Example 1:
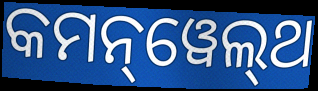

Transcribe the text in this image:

କମନ୍‌ୱେଲ୍‌ଥ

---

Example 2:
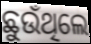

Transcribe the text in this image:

ଛୁଉଁଥିଲେ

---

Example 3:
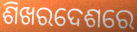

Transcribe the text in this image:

ଶିଖରଦେଶରେ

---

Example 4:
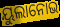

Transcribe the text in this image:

ୟୁଲାନୋଭ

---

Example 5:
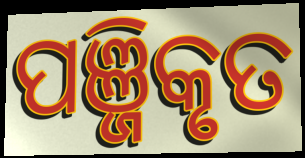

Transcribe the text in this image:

ପଞ୍ଜିକୃତ